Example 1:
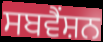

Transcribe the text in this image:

ਸਬਵੈਂਸ਼ਨ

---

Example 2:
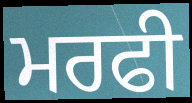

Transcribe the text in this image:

ਮਰਫੀ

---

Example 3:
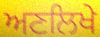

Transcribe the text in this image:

ਅਣਲਿਖੇ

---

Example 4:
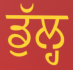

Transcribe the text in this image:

ਡੁੱਲ੍ਹ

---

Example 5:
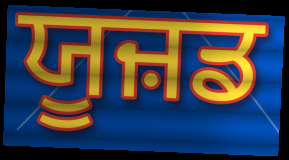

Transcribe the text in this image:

ਯੂਜ਼ਡ